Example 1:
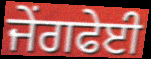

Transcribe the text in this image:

ਜੇਂਗਫੇਈ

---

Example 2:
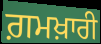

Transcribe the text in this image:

ਗ਼ਮਖ਼ਾਰੀ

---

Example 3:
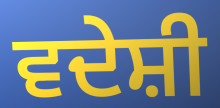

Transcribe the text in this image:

ਵਦੇਸ਼ੀ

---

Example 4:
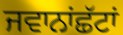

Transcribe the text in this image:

ਜਵਾਨਾਂਛੱਟਾਂ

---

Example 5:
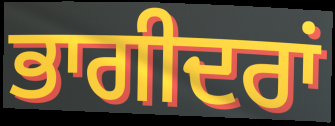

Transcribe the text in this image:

ਭਾਗੀਦਰਾਂ